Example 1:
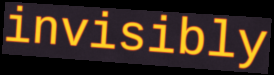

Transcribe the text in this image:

invisibly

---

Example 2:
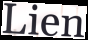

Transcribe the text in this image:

Lien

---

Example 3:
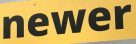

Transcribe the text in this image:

newer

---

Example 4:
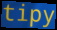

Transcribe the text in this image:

tipy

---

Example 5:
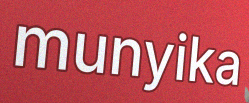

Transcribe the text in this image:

munyika